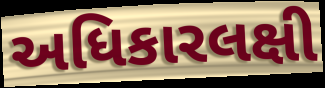
અધિકારલક્ષી